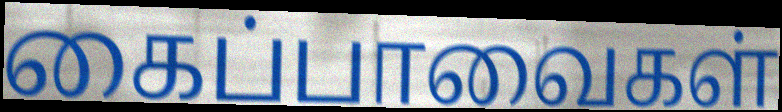
கைப்பாவைகள்